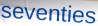
seventies